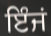
ਇੰਜਂ